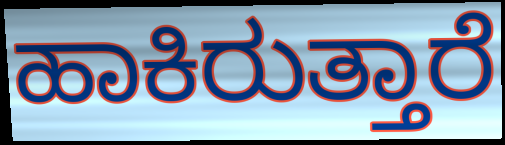
ಹಾಕಿರುತ್ತಾರೆ